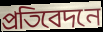
প্ৰতিবেদনে